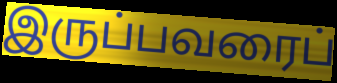
இருப்பவரைப்